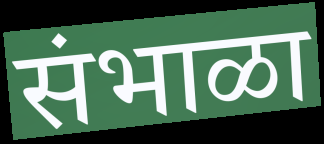
संभाळा